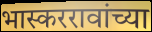
भास्कररावांच्या